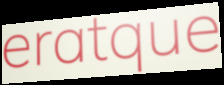
eratque